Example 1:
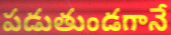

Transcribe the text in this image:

పడుతుండగానే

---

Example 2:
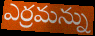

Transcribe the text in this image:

ఎర్రమన్ను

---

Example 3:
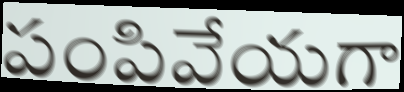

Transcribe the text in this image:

పంపివేయగా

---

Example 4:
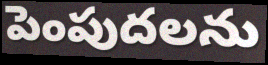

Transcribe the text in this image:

పెంపుదలను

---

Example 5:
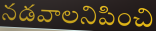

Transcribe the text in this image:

నడవాలనిపించి